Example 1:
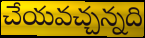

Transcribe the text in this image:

చేయవచ్చన్నది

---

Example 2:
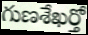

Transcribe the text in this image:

గుణశేఖర్తో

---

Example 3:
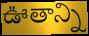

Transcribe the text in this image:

ఊతాన్ని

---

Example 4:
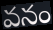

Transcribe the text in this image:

వనం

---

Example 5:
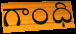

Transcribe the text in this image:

గాంధి